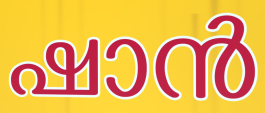
ഷാൻ